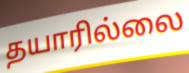
தயாரில்லை